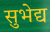
सुभेद्य